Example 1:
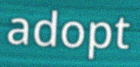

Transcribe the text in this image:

adopt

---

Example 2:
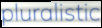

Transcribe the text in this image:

pluralistic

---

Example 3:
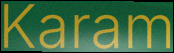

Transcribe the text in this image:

Karam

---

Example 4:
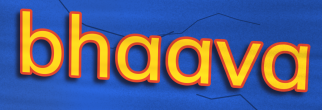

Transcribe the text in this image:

bhaava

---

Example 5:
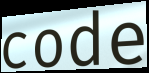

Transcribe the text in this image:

code